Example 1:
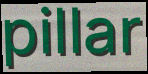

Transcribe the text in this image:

pillar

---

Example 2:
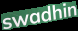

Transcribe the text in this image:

swadhin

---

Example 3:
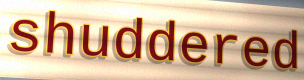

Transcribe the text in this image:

shuddered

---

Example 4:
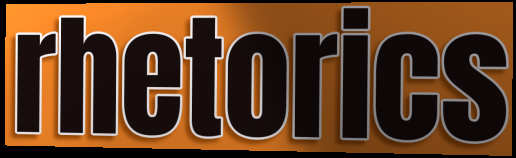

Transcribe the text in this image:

rhetorics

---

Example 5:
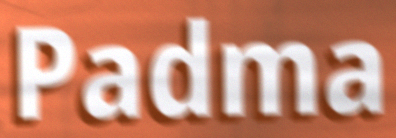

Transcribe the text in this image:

Padma